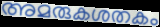
അമരുകശതകം